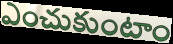
ఎంచుకుంటాం